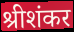
श्रीशंकर